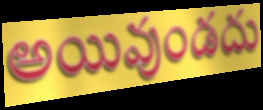
అయివుండదు